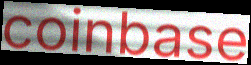
coinbase